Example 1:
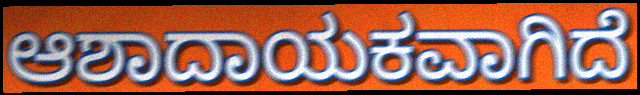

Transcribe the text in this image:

ಆಶಾದಾಯಕವಾಗಿದೆ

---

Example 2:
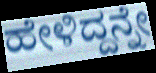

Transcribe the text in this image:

ಹೇಳಿದ್ದನ್ನೇ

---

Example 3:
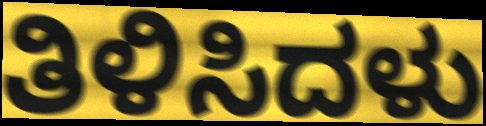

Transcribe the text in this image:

ತಿಳಿಸಿದಳು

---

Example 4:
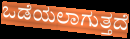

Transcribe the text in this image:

ಒಡೆಯಲಾಗುತ್ತದೆ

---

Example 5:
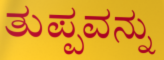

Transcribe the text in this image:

ತುಪ್ಪವನ್ನು